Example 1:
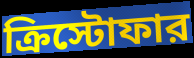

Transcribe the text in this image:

ক্রিস্টোফার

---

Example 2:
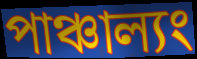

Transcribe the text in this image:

পাঞ্চাল্যং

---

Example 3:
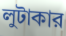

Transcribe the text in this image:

লুটাকার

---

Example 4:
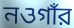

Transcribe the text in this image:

নওগাঁর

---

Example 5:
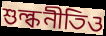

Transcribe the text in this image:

শুল্কনীতিও